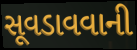
સૂવડાવવાની